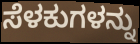
ಸೆಳಕುಗಳನ್ನು